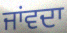
ਜਾਂਵਦਾ